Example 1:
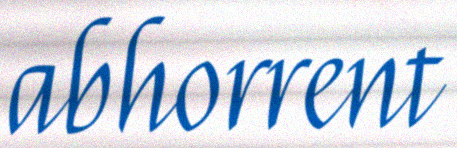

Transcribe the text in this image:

abhorrent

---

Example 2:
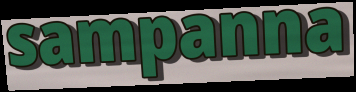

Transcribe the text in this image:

sampanna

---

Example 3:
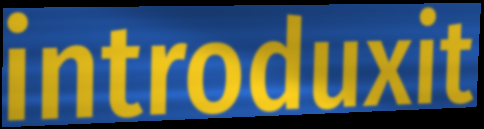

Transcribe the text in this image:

introduxit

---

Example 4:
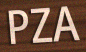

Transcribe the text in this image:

PZA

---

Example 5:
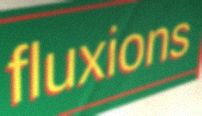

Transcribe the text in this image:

fluxions